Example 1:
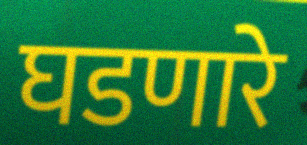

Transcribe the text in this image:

घडणारे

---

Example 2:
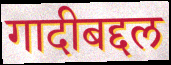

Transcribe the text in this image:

गादीबद्दल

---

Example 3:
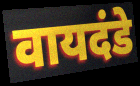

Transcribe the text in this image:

वायदंडे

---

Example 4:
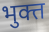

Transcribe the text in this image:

भुक्त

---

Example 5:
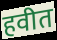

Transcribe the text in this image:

हवीत